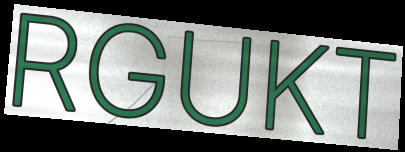
RGUKT